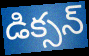
డిక్సన్